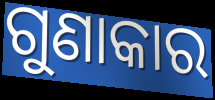
ଗୁଣାକାର